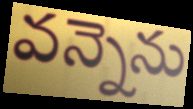
వన్నెను